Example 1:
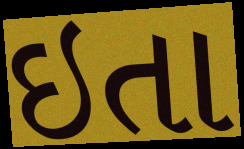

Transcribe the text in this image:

ઇતા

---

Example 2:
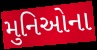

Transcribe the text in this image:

મુનિઓના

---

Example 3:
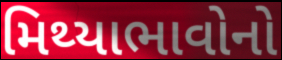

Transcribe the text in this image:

મિથ્યાભાવોનો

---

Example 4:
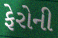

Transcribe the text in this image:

ફેરોની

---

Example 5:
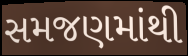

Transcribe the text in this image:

સમજણમાંથી